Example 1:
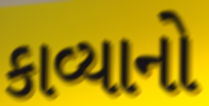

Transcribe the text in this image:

કાવ્યાનો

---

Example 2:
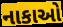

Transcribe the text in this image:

નાકાઓ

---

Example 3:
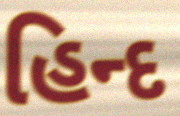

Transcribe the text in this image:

હિન્દ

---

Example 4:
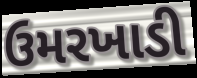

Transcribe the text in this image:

ઉમરખાડી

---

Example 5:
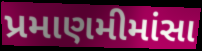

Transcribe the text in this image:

પ્રમાણમીમાંસા